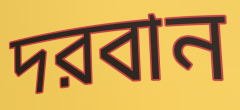
দরবান